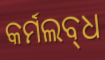
କର୍ମଲବ୍‌ଧ